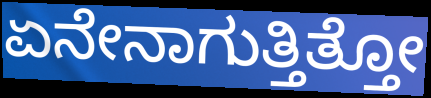
ಏನೇನಾಗುತ್ತಿತ್ತೋ